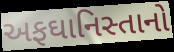
અફઘાનિસ્તાનો